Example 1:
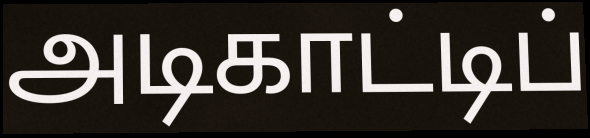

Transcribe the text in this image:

அடிகாட்டிப்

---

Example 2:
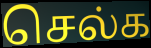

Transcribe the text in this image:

செல்க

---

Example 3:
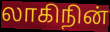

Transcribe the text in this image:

லாகிநின்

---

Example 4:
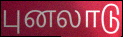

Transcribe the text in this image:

புனலாடு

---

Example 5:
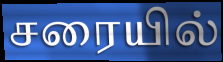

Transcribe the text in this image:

சரையில்